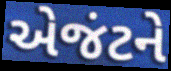
એજંટને